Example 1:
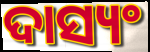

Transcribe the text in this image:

ଦାସ୍ୟଂ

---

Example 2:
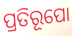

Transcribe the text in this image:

ପ୍ରତିରୂପୋ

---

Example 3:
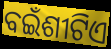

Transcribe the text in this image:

ବଇଁଶୀଟିଏ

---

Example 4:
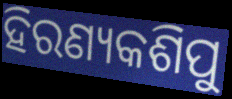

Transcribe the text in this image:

ହିରଣ୍ୟକଶିପୁ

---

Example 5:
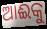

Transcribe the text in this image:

ଆଈକୁ